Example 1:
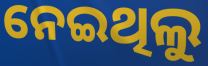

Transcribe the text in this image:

ନେଇଥିଲୁ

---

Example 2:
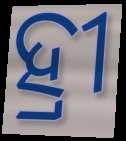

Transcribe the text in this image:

ହ୍ରୀ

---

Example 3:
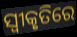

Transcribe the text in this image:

ସ୍ବୀକୃତିରେ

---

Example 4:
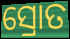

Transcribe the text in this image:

ସ୍ରୋତ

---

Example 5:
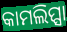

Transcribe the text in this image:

କାମଲିପ୍ସା